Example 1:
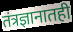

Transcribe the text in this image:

तंत्रज्ञानातही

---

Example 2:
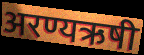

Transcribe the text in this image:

अरण्यऋषी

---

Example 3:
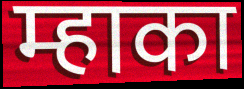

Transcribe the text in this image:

म्हाका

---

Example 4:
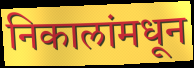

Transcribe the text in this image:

निकालांमधून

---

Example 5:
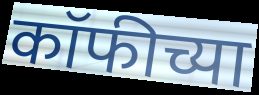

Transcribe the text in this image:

कॉफीच्या